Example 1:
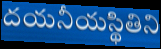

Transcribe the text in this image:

దయనీయస్థితిని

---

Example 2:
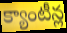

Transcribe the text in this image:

క్యాంటీన్ల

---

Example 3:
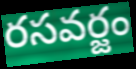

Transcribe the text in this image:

రసవర్జం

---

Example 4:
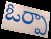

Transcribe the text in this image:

ఓర్పా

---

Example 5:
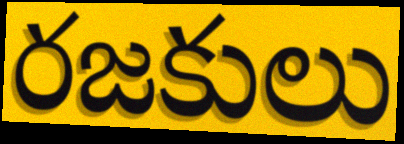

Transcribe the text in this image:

రజకులు